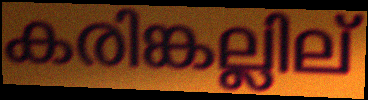
കരിങ്കല്ലില്